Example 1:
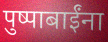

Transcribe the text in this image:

पुष्पाबाईंना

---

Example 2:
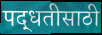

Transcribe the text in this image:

पद्धतीसाठी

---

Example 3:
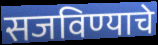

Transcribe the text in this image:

सजविण्याचे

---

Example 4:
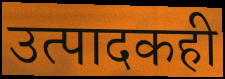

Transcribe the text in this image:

उत्पादकही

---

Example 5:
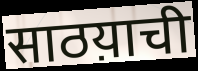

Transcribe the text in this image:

साठय़ाची